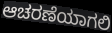
ಆಚರಣೆಯಾಗಲಿ